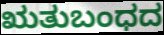
ಋತುಬಂಧದ